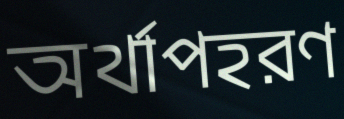
অর্থাপহরণ